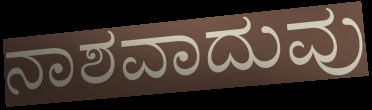
ನಾಶವಾದುವು